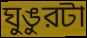
ঘুঙুরটা